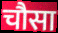
चौसा